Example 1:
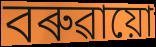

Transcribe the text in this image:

বৰুৱায়ো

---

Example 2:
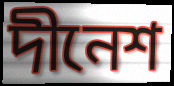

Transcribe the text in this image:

দীনেশ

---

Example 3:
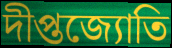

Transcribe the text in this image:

দীপ্তজ্যোতি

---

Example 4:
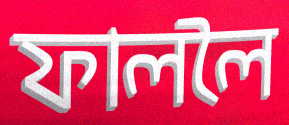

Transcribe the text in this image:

ফাললৈ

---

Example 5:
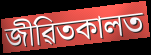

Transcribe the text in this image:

জীৱিতকালত